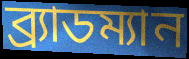
ব্র্যাডম্যান